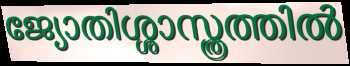
ജ്യോതിശ്ശാസ്ത്രത്തിൽ